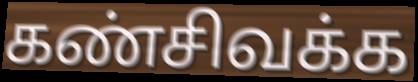
கண்சிவக்க